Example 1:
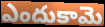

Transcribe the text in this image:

ఎందుకామె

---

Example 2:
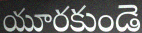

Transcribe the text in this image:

యూరకుండె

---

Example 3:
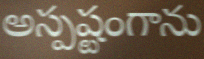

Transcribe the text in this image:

అస్పష్టంగాను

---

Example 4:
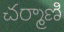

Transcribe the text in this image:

చర్మాణి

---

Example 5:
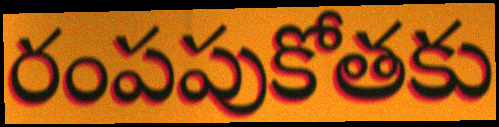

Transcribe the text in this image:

రంపపుకోతకు